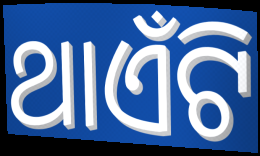
ଥାଏଁଟି